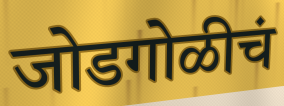
जोडगोळीचं